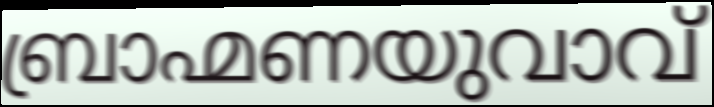
ബ്രാഹ്മണയുവാവ്